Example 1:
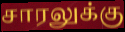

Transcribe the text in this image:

சாரலுக்கு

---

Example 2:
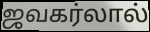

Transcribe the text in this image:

ஜவகர்லால்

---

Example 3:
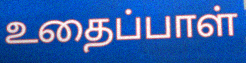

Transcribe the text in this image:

உதைப்பாள்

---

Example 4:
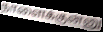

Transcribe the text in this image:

நாளைக்குன்னு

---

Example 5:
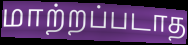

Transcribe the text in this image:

மாற்றப்படாத